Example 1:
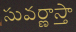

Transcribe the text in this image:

సువర్ణాస్తా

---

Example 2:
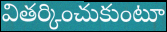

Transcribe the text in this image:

వితర్కించుకుంటూ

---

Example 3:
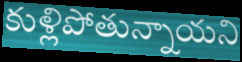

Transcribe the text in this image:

కుళ్లిపోతున్నాయని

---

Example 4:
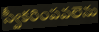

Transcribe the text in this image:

స్వీకరింపవలెను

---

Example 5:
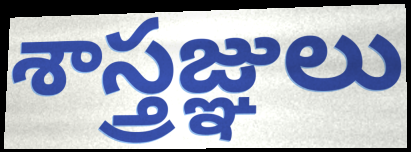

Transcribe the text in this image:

శాస్త్రజ్ఞులు